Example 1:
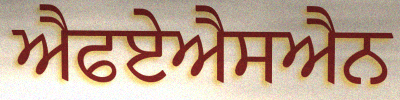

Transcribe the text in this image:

ਐਫਏਐਸਐਨ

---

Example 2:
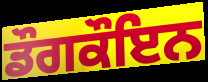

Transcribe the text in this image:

ਡੌਗਕੌਇਨ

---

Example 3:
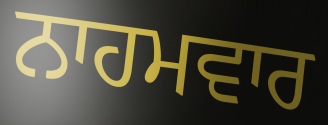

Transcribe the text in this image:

ਨਾਹਮਵਾਰ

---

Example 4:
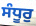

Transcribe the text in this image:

ਸੰਧੂਰੁ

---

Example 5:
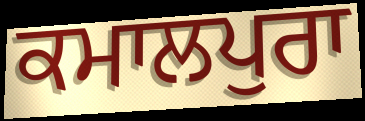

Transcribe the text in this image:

ਕਮਾਲਪੁਰਾ